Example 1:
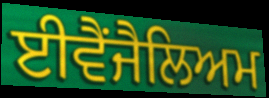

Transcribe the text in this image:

ਈਵੈਂਜੈਲਿਅਮ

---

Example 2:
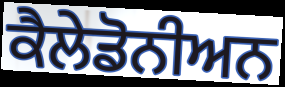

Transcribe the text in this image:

ਕੈਲੇਡੋਨੀਅਨ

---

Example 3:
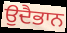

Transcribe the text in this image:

ਉਦੈਭਾਨ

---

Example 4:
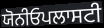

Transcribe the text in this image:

ਯੋਨੀਓਪਲਾਸਟੀ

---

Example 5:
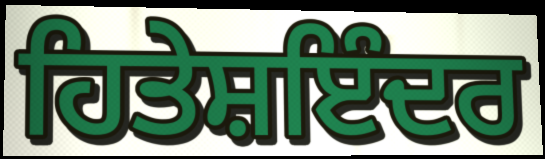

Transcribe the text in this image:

ਹਿਤੇਸ਼ਇੰਦਰ